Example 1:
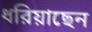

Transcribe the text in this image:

ধরিয়াছেন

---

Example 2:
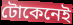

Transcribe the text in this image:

টোকেনেই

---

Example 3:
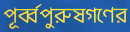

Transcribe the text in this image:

পূর্ব্বপুরুষগণের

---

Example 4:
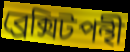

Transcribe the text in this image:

ব্রেক্সিটপন্থী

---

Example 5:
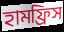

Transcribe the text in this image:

হামফ্রিস